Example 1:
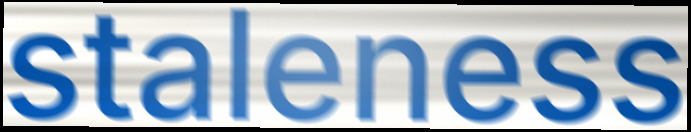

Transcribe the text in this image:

staleness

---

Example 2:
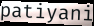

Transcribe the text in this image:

patiyani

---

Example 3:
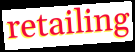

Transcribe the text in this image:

retailing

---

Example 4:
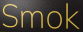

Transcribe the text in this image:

Smok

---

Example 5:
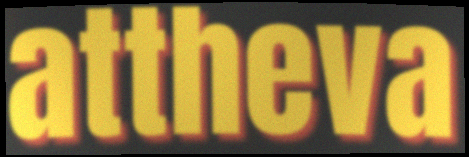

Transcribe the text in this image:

attheva